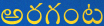
అరగంట